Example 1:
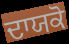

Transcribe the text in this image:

ਦਾਯਕੋ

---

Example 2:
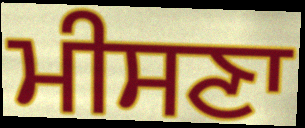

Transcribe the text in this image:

ਮੀਸਣਾ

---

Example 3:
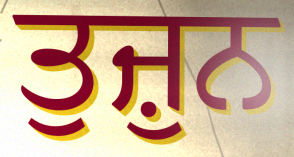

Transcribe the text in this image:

ਤੁਜ਼ੁਨ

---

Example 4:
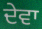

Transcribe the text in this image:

ਦੇਵਾ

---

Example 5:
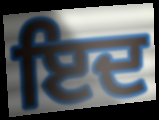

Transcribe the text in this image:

ਇਦ